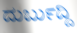
ದುರ್ಬುದ್ದಿ